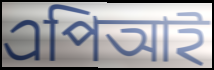
এপিআই